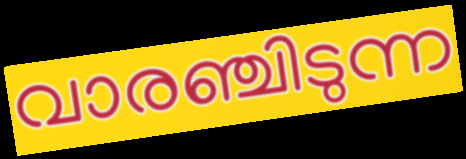
വാരഞ്ചിടുന്ന